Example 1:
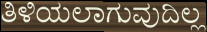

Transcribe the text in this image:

ತಿಳಿಯಲಾಗುವುದಿಲ್ಲ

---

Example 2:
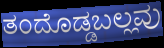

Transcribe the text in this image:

ತಂದೊಡ್ಡಬಲ್ಲವು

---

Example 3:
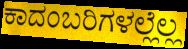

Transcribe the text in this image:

ಕಾದಂಬರಿಗಳಲ್ಲೆಲ್ಲ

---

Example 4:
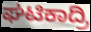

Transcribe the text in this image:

ಘಟಿಕಾದ್ರಿ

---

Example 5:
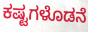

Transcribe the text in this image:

ಕಷ್ಟಗಳೊಡನೆ